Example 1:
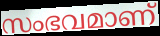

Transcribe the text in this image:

സംഭവമാണ്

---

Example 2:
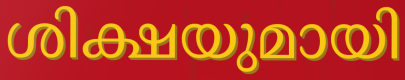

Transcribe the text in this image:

ശിക്ഷയുമായി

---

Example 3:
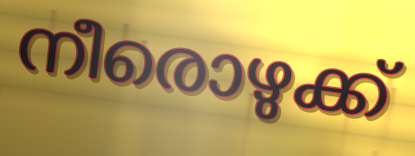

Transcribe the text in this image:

നീരൊഴുക്ക്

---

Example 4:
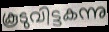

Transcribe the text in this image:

കൂടുവിട്ടകന്നു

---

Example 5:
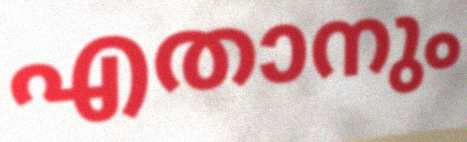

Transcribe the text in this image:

എതാനും